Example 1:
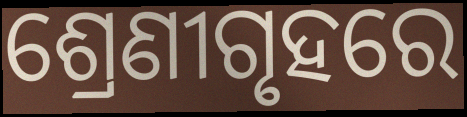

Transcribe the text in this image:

ଶ୍ରେଣୀଗୃହରେ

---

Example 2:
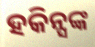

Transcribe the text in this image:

ହକିନ୍ସଙ୍କ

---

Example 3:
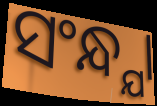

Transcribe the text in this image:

ସଂନ୍ଧ୍ଯା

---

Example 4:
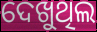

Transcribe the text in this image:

ଦେଖୁଥିଲ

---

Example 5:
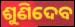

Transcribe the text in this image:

ଶୁଣିଦେବ